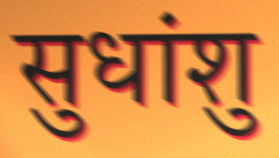
सुधांशु